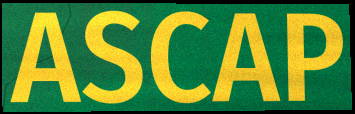
ASCAP